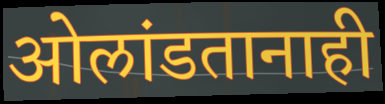
ओलांडतानाही